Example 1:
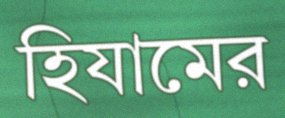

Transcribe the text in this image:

হিযামের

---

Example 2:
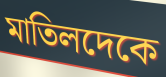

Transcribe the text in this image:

মাতিলদেকে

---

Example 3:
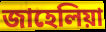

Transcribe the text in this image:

জাহেলিয়া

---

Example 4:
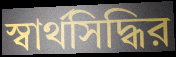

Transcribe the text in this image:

স্বার্থসিদ্ধির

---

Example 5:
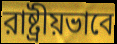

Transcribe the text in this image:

রাষ্ট্রীয়ভাবে